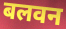
बलवन